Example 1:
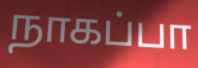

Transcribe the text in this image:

நாகப்பா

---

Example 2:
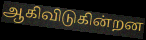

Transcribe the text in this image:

ஆகிவிடுகின்றன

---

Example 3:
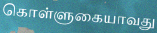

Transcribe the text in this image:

கொள்ளுகையாவது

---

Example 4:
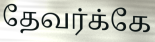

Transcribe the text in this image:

தேவர்க்கே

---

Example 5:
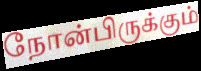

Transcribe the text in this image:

நோன்பிருக்கும்